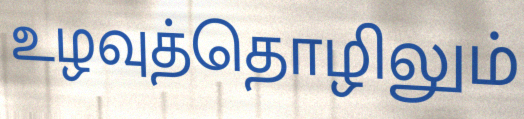
உழவுத்தொழிலும்